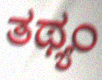
ತಥ್ಯಂ